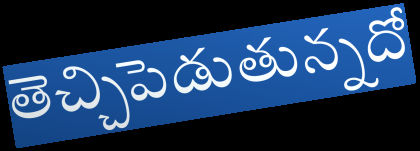
తెచ్చిపెడుతున్నదో